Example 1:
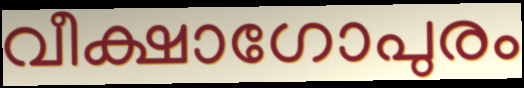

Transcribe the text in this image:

വീക്ഷാഗോപുരം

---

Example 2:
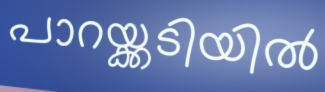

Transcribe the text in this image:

പാറയ്ക്കടിയിൽ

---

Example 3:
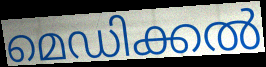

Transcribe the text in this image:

മെഡിക്കൽ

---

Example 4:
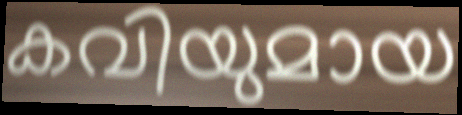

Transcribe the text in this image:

കവിയുമായ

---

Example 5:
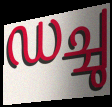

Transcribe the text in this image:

ഡച്ചു